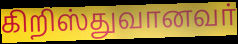
கிறிஸ்துவானவர்